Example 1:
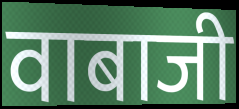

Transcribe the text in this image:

वाबाजी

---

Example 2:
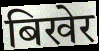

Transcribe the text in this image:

बिखेर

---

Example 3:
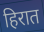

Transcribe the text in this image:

हिरात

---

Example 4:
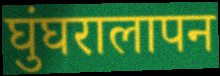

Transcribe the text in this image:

घुंघरालापन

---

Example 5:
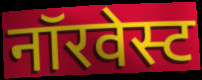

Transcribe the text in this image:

नॉरवेस्ट